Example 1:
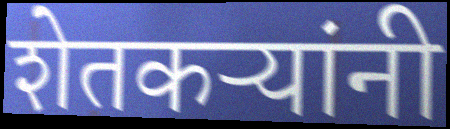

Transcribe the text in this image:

शेतकऱ्यांनी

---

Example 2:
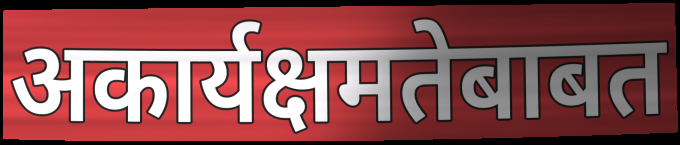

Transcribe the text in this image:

अकार्यक्षमतेबाबत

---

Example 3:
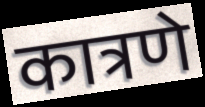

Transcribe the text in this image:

कात्रणे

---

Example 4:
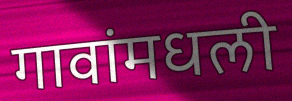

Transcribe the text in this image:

गावांमधली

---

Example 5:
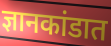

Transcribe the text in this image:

ज्ञानकांडात